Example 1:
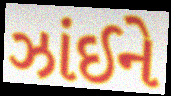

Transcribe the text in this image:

ઝાંઈને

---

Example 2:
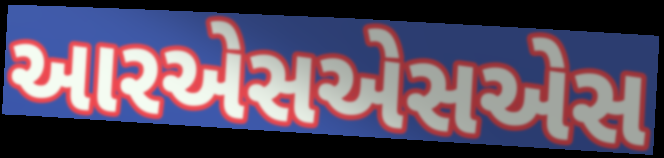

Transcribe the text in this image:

આરએસએસએસ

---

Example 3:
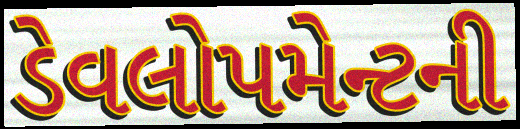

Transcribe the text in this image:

ડેવલોપમેન્ટની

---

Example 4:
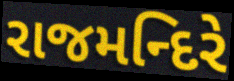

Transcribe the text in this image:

રાજમન્દિરે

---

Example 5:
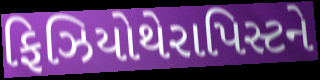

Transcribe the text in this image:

ફિઝિયોથેરાપિસ્ટને